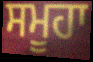
ਸਮੂਹਾ